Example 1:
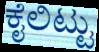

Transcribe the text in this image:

ಕೈಲಿಟ್ಟು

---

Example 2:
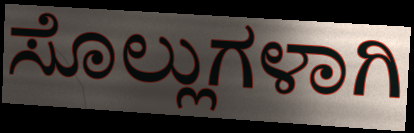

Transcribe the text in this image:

ಸೊಲ್ಲುಗಳಾಗಿ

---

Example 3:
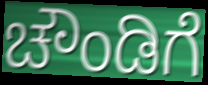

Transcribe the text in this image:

ಚೌಂಡಿಗೆ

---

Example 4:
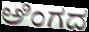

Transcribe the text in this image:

ಅಿಂಗದ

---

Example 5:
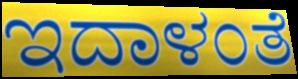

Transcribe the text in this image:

ಇದಾಳಂತೆ